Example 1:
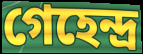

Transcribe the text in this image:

গেহেন্দ্র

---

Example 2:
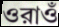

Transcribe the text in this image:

ওরাওঁ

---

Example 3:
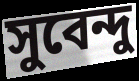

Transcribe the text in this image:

সুবেন্দু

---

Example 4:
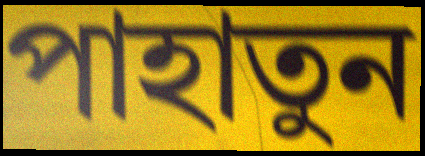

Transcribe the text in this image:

পাহাতুন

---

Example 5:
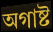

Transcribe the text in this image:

অগাষ্ট